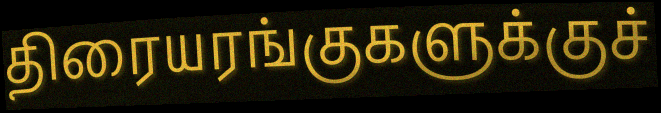
திரையரங்குகளுக்குச்